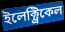
ইলেক্ট্রিকেল